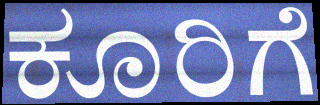
ಕೂರಿಗೆ